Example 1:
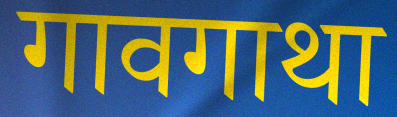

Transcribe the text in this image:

गावगाथा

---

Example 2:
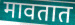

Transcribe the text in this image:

मावतात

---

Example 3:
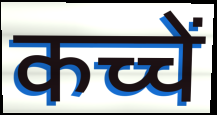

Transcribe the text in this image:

कच्चें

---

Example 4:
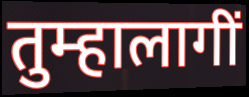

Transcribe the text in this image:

तुम्हालागीं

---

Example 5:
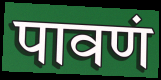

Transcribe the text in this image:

पावणं